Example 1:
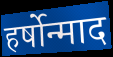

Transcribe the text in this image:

हर्षोन्माद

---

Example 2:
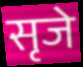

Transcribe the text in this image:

सृजे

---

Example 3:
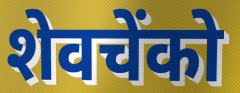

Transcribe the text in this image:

शेवचेंको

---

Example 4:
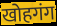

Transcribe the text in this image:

खोहगंग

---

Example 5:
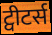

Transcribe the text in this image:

ट्वीटर्स